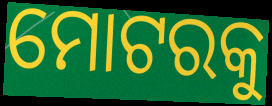
ମୋଟରକୁ